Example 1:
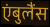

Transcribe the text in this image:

एंबुलैंस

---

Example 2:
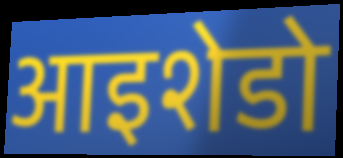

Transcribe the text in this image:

आइशेडो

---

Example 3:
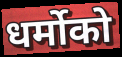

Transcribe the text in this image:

धर्मोको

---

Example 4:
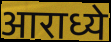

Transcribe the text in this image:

आराध्ये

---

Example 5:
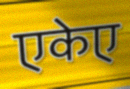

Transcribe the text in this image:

एकेए